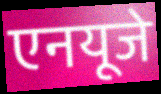
एनयूजे